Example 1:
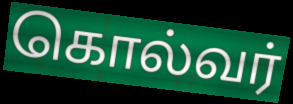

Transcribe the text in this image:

கொல்வர்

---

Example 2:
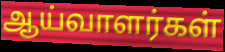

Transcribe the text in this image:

ஆய்வாளர்கள்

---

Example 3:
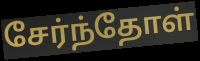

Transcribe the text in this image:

சேர்ந்தோள்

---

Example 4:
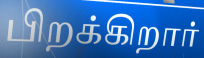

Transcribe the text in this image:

பிறக்கிறார்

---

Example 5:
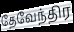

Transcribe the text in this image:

தேவேந்திர